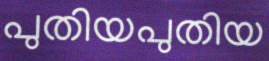
പുതിയപുതിയ